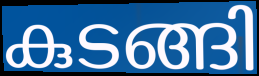
കുടങ്ങി